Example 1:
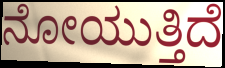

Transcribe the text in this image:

ನೋಯುತ್ತಿದೆ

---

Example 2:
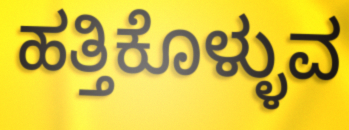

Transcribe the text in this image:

ಹತ್ತಿಕೊಳ್ಳುವ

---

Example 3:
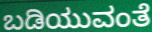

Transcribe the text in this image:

ಬಡಿಯುವಂತೆ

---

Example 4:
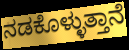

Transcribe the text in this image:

ನಡಕೊಳ್ಳುತ್ತಾನೆ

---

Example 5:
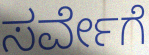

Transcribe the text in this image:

ಸರ್ವೇಗೆ